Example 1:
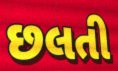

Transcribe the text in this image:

છલતી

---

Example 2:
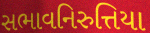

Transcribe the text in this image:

સભાવનિરુત્તિયા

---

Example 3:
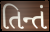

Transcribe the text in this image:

તિન્તં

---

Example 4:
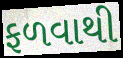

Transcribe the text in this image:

ફળવાથી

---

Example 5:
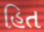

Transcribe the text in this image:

હિત